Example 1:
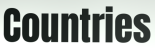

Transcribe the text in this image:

Countries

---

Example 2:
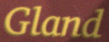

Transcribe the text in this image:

Gland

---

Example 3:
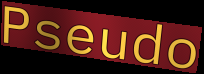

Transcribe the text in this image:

Pseudo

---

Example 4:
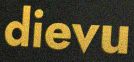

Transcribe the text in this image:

dievu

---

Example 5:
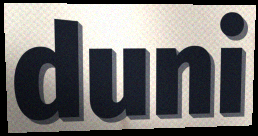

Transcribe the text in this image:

duni